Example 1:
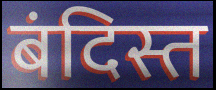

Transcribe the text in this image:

बंदिस्त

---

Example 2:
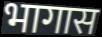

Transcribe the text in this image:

भागास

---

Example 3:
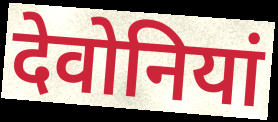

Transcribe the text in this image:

देवोनियां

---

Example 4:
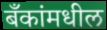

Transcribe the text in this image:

बँकांमधील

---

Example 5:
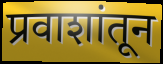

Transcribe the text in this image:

प्रवाशांतून